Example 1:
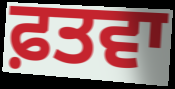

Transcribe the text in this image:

ਫ਼ਤਵਾ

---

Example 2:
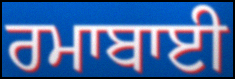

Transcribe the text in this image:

ਰਮਾਬਾਈ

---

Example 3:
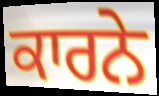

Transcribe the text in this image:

ਕਾਰਨੇ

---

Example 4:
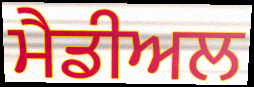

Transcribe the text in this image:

ਮੈਡੀਅਲ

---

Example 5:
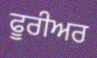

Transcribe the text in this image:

ਫੂਰੀਅਰ